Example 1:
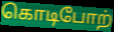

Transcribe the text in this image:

கொடிபோற்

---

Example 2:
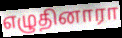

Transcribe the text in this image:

எழுதினாரா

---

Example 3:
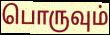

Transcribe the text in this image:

பொருவும்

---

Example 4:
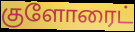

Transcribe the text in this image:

குளோரைட்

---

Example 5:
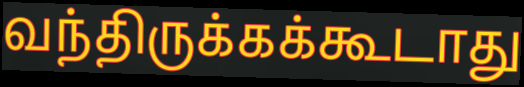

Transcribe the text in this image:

வந்திருக்கக்கூடாது